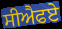
ਸੀਐਫਏ